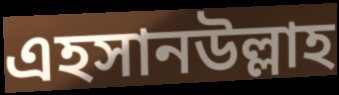
এহসানউল্লাহ